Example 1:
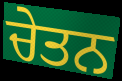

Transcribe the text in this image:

ਚੇਤਨ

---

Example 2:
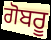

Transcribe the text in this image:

ਗੋਬਰੂ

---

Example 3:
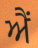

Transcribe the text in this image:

ਐੰ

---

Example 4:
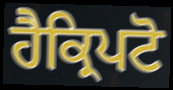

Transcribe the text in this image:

ਹੈਕ੍ਰਿਪਟੋ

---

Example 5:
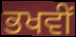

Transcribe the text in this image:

ਭਖਵੀਂ